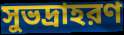
সুভদ্রাহরণ